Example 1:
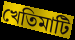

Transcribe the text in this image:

খেতিমাটি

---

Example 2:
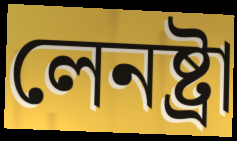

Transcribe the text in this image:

লেনষ্ট্ৰা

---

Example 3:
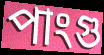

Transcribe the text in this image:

পাংগু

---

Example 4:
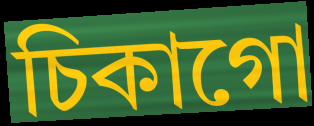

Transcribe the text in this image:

চিকাগো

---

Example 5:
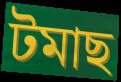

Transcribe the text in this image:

টমাছ